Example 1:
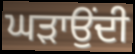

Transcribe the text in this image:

ਘੜਾਉਂਦੀ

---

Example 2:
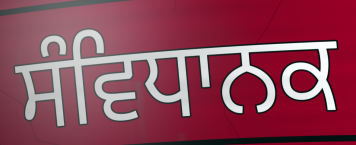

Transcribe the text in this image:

ਸੰਵਿਧਾਨਕ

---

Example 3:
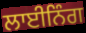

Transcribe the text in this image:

ਲਾਈਨਿੰਗ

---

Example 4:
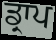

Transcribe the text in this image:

ਡ੍ਰਾਪ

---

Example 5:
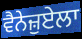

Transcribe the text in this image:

ਵੈਨੇਜ਼ੁਏਲਾ